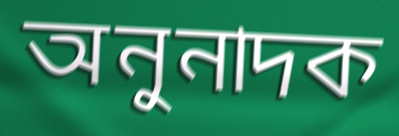
অনুনাদক